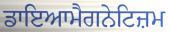
ਡਾਇਆਮੈਗਨੇਟਿਜ਼ਮ